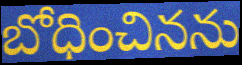
బోధించినను